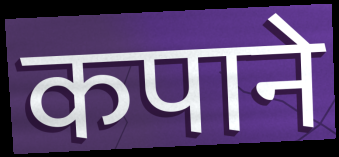
कपाने